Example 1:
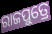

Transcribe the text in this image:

ରାଜପୁତ୍ରେ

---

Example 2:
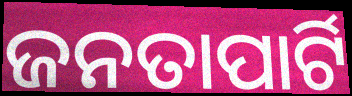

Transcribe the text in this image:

ଜନତାପାର୍ଟି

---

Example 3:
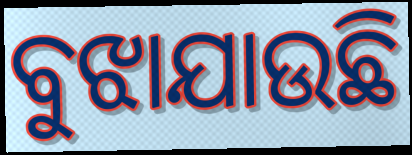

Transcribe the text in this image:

ବୁଝାଯାଉଛି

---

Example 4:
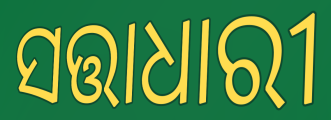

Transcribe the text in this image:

ସତ୍ତାଧାରୀ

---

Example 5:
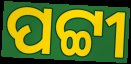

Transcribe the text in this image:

ପଟ୍ଟୀ